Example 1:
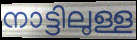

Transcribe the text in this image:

നാട്ടിലുള്ള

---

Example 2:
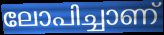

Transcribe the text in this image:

ലോപിച്ചാണ്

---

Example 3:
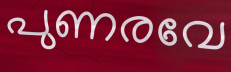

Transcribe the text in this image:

പുണരവേ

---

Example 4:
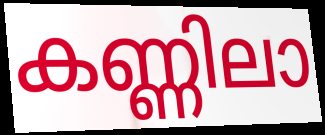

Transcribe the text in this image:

കണ്ണിലാ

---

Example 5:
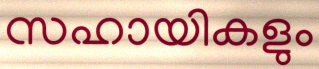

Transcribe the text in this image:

സഹായികളും